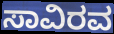
ಸಾವಿರವ